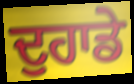
ਦੁਹਾਡੇ